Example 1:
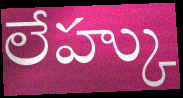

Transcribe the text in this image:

లేహ్కు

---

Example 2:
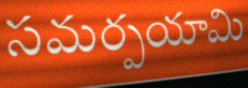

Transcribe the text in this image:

సమర్పయామి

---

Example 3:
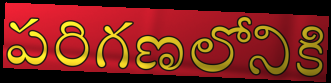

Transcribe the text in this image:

పరిగణలోనికి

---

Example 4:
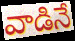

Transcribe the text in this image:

వాడినే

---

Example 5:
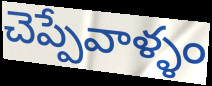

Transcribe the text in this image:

చెప్పేవాళ్ళం